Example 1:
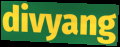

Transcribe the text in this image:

divyang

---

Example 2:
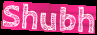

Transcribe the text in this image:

Shubh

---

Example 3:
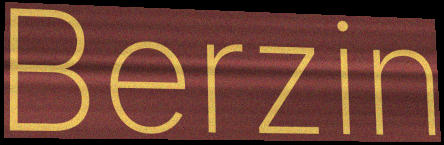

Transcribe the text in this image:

Berzin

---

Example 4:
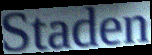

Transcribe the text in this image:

Staden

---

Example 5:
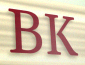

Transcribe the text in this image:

BK